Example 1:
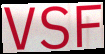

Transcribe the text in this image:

VSF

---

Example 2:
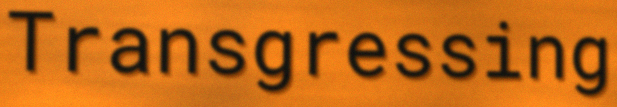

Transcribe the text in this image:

Transgressing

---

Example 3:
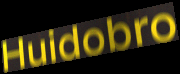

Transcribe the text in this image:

Huidobro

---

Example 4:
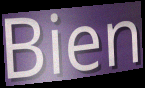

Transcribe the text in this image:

Bien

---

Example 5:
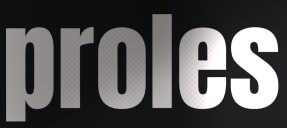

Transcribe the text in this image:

proles